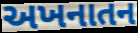
અખનાતન